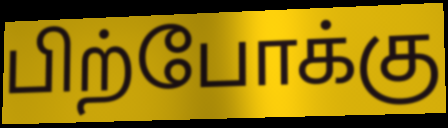
பிற்போக்கு